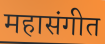
महासंगीत